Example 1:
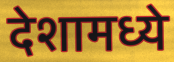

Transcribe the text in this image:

देशामध्ये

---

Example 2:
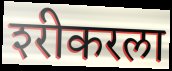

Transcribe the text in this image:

श्रीकरला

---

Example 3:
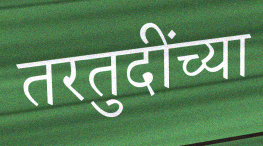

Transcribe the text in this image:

तरतुदींच्या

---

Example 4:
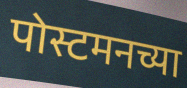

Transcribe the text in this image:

पोस्टमनच्या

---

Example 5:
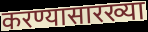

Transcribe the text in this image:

करण्यासारख्या